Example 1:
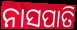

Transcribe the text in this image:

ନାସପାତି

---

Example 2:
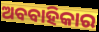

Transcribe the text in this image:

ଅବବାହିକାର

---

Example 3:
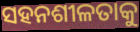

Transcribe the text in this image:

ସହନଶୀଳତାକୁ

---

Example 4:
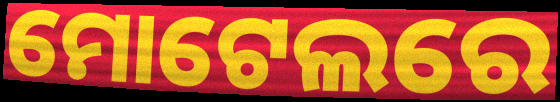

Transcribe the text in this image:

ମୋଟେଲରେ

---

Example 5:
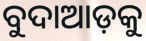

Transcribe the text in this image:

ବୁଦାଆଡ଼କୁ